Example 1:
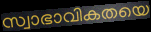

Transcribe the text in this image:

സ്വാഭാവികതയെ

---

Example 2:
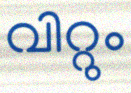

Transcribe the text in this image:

വിറ്റും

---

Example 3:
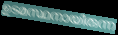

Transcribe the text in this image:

ഉടമസ്ഥനായിരുന്ന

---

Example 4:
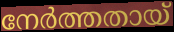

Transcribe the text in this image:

നേർത്തതായ്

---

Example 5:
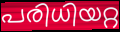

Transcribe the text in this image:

പരിധിയറ്റ